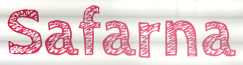
Safarna